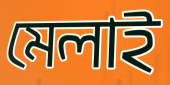
মেলাই